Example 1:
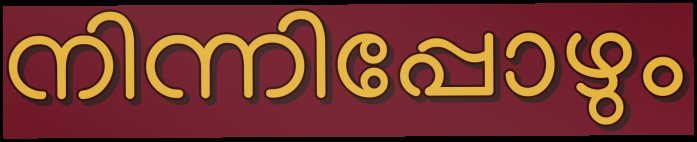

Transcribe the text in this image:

നിന്നിപ്പോഴും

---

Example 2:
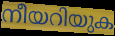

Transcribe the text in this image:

നീയറിയുക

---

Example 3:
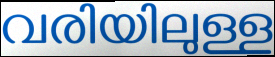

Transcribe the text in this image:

വരിയിലുള്ള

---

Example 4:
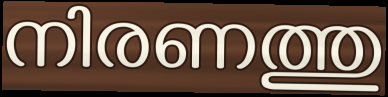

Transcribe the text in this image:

നിരണത്തു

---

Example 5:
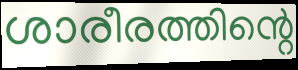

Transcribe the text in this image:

ശാരീരത്തിന്റെ